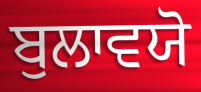
ਬੁਲਾਵਯੋ